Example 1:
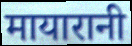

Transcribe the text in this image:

मायारानी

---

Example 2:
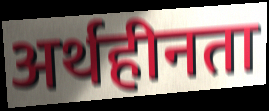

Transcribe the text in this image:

अर्थहीनता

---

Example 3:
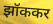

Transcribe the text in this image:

झॉककर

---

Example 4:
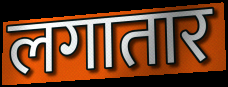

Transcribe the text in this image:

लगातार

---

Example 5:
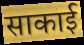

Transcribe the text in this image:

साकाई